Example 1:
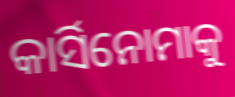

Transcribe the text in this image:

କାର୍ସିନୋମାକୁ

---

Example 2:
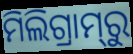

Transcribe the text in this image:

ମିଲିଗ୍ରାମ୍‌ରୁ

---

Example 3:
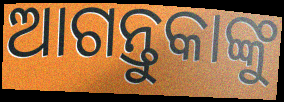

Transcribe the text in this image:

ଆଗନ୍ତୁକାଙ୍କୁ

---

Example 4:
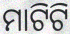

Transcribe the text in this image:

ମାଟିଟି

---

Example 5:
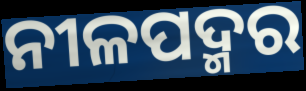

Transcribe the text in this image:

ନୀଳପଦ୍ମର